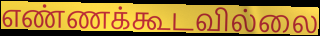
எண்ணக்கூடவில்லை